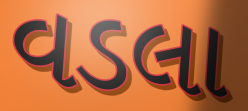
વડલા